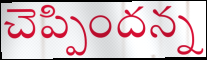
చెప్పిందన్న